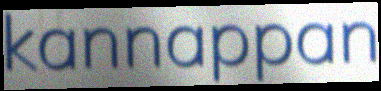
kannappan